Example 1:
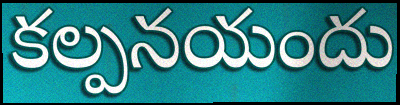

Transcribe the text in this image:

కల్పనయందు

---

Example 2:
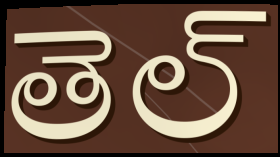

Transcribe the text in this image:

తెల్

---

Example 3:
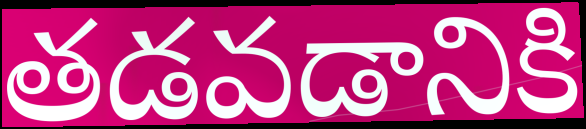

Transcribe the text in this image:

తడవడానికి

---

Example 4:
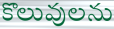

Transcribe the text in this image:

కొలువులను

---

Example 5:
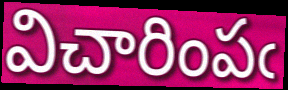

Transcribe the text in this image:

విచారింపఁ